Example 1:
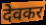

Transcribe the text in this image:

देवकर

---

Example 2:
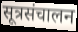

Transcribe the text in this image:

सूत्रसंचालन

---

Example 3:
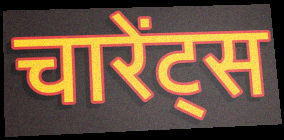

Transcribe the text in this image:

चारेंट्स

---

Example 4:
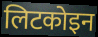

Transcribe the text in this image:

लिटकोइन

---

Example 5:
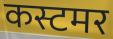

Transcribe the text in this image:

कस्टमर